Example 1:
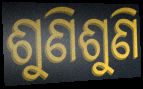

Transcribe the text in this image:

ଶୁଣିଶୁଣି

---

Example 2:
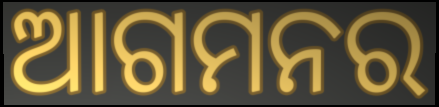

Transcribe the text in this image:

ଆଗମନର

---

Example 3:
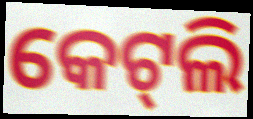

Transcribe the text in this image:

କେଟ୍‍ଲି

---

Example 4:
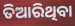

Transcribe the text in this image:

ତିଆରିଥିବା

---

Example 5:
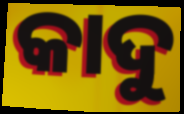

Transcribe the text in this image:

କାଦୁ